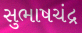
સુભાષચંદ્ર